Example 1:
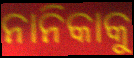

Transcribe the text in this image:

ନାନିକାକୁ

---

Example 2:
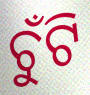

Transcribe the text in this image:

ଚୁଁଟି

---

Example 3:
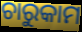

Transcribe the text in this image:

ଚାରୁକାମ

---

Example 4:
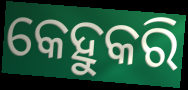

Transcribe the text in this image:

କେହୁକରି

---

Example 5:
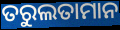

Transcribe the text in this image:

ତରୁଲତାମାନ